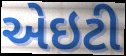
એઇટી